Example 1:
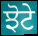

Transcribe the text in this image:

ਝੋਟੇ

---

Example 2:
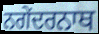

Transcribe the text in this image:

ਨਗੇਂਦਰਨਾਥ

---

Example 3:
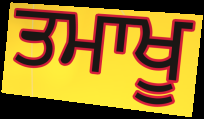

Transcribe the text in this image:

ਤਮਾਖੂ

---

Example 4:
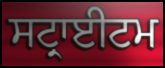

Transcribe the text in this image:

ਸਟ੍ਰਾਈਟਮ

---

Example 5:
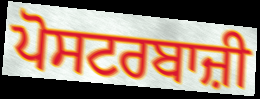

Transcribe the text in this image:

ਪੋਸਟਰਬਾਜ਼ੀ